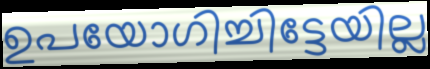
ഉപയോഗിച്ചിട്ടേയില്ല